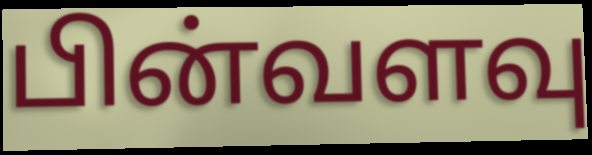
பின்வளவு